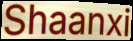
Shaanxi